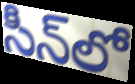
సీన్‌లో